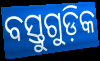
ବସ୍ତୁଗୁଡ଼ିକ